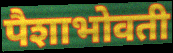
पैशाभोवती